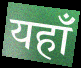
यहाँ